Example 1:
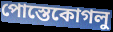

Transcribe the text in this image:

পোস্তেকোগলু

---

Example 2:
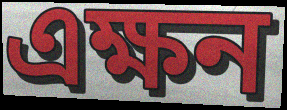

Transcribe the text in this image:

এক্ষন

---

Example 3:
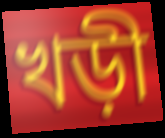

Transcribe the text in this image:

খড়ী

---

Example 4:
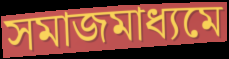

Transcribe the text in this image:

সমাজমাধ্যমে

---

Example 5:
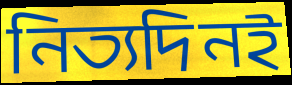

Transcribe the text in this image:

নিত্যদিনই